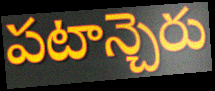
పటాన్చెరు